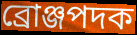
ব্রোঞ্জপদক